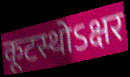
कूटस्थोऽक्षर